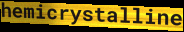
hemicrystalline